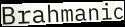
Brahmanic